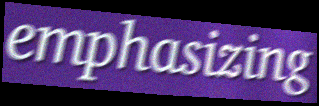
emphasizing